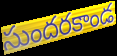
సుందరకాండ